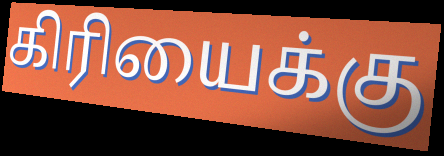
கிரியைக்கு